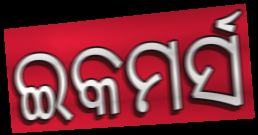
ଇକମର୍ସ